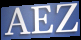
AEZ